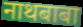
नाथबाबा